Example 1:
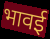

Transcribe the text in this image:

भावई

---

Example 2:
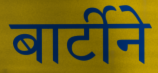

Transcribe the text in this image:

बार्टीने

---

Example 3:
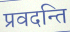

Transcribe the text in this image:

प्रवदन्ति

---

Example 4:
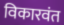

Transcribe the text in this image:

विकारवंत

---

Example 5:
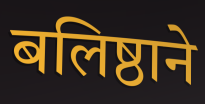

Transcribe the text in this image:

बलिष्ठाने